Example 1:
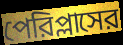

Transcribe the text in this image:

পেরিপ্লাসের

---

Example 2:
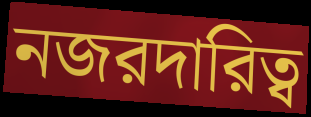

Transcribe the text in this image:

নজরদারিত্ব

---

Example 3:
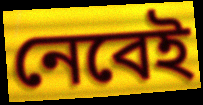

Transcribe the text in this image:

নেবেই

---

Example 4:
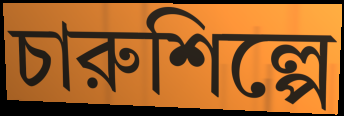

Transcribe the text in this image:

চারুশিল্পে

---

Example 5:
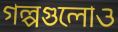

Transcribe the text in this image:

গল্পগুলোও